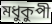
মধুকুপী